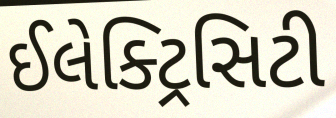
ઈલેક્ટ્રિસિટી